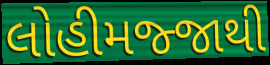
લોહીમજ્જાથી